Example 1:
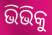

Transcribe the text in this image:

ଭିଭିକୁ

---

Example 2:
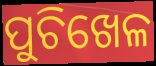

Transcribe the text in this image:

ପୁଚିଖେଳ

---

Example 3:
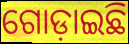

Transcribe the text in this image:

ଗୋଡ଼ାଇଛି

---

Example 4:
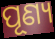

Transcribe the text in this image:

ପୂଣ୍ୟ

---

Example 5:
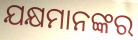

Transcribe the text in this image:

ଯକ୍ଷମାନଙ୍କର